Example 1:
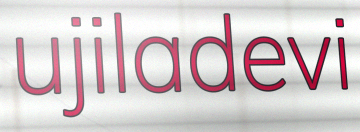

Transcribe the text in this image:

ujiladevi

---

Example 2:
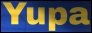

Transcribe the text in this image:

Yupa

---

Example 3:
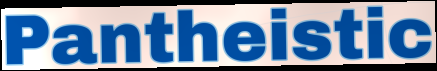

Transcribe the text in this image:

Pantheistic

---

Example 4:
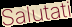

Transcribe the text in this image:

Salutati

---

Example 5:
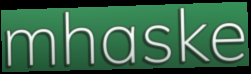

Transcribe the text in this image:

mhaske